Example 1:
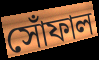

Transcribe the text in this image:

সোঁফাল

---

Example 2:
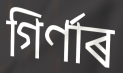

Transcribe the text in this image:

গিৰ্ণাৰ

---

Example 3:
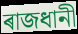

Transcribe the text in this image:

ৰাজধানী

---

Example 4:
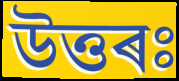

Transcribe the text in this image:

উত্তৰঃ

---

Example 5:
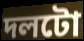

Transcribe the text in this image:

দলটো